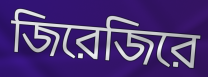
জিরেজিরে